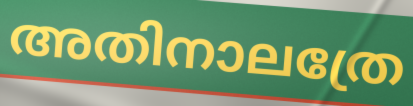
അതിനാലത്രേ